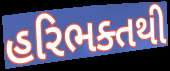
હરિભક્તથી